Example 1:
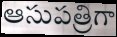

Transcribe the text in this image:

ఆసుపత్రిగా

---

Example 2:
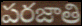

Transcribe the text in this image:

పరజాతి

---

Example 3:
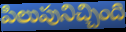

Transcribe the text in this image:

పిలుపునిచ్చింది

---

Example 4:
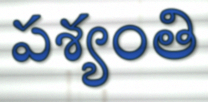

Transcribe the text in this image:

పశ్యంతి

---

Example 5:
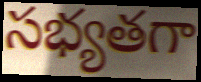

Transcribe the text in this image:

సభ్యతగా